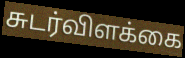
சுடர்விளக்கை